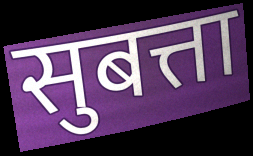
सुबत्ता